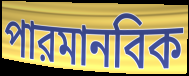
পারমানবিক